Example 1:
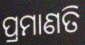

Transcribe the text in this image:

ପ୍ରମାଣତି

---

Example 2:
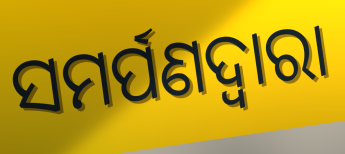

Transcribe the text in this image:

ସମର୍ପଣଦ୍ୱାରା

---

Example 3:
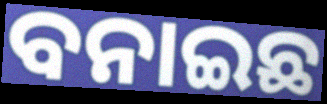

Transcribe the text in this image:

ବନାଇଛ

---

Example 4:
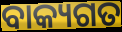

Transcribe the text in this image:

ବାକ୍ୟଗତ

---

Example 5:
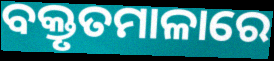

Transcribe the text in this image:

ବକ୍ତୃତମାଳାରେ